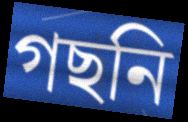
গছনি